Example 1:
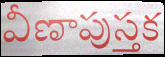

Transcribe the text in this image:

వీణాపుస్తక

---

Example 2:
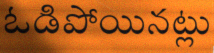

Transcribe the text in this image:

ఓడిపోయినట్లు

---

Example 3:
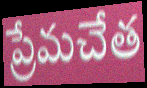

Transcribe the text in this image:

ప్రేమచేత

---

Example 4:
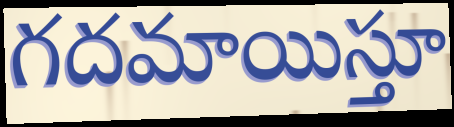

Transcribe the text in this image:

గదమాయిస్తూ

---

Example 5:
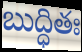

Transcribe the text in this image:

బుద్ధితః